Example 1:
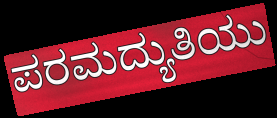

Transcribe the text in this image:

ಪರಮದ್ಯುತಿಯು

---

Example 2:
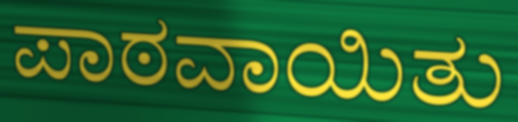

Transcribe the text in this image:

ಪಾಠವಾಯಿತು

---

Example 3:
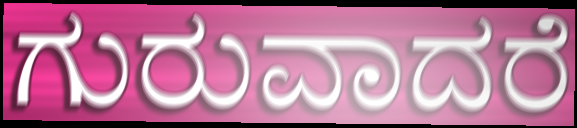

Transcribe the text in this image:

ಗುರುವಾದರೆ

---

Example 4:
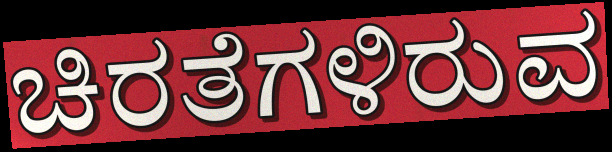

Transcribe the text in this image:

ಚಿರತೆಗಳಿರುವ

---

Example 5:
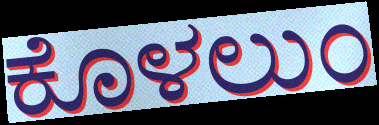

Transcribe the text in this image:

ಕೊಳಲುಂ